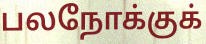
பலநோக்குக்